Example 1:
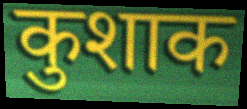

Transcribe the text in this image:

कुशाक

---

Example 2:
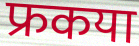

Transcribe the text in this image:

फ्रकया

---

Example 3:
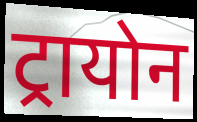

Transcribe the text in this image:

ट्रायोन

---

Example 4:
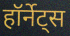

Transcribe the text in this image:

हॉर्नेट्स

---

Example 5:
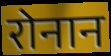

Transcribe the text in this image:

रोनान